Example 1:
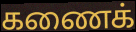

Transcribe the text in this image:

கணைக்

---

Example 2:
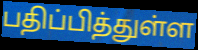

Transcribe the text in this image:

பதிப்பித்துள்ள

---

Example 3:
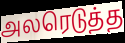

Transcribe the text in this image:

அலரெடுத்த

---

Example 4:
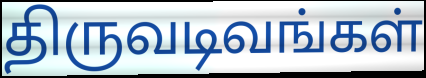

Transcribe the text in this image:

திருவடிவங்கள்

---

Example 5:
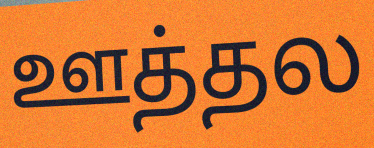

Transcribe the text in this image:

ஊத்தல